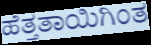
ಹೆತ್ತತಾಯಿಗಿಂತ